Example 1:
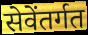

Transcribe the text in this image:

सेवेंतर्गत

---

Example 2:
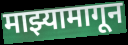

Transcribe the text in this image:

माझ्यामागून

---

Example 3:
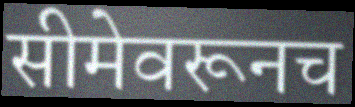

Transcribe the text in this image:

सीमेवरूनच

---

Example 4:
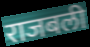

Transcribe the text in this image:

राजबली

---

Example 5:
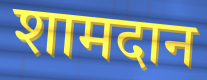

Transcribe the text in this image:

शामदान